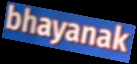
bhayanak